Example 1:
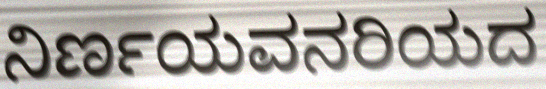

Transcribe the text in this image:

ನಿರ್ಣಯವನರಿಯದ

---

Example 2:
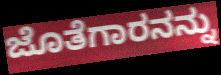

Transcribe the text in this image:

ಜೊತೆಗಾರನನ್ನು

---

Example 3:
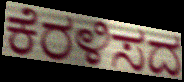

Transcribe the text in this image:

ಕೆರಳಿಸದ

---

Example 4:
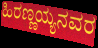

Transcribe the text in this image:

ಹಿರಣ್ಣಯ್ಯನವರ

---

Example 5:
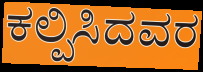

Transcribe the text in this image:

ಕಲ್ಪಿಸಿದವರ